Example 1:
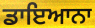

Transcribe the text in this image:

ਡਾਇਆਨਾ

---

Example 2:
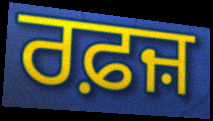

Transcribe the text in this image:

ਰਫ਼ਜ਼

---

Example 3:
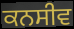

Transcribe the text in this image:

ਕਨਸੀਵ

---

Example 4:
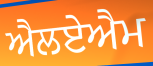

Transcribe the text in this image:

ਐਲਏਐਮ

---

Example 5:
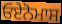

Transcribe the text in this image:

ਓਏਨੋਮਾਸ